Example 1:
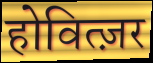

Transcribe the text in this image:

होवित्ज़र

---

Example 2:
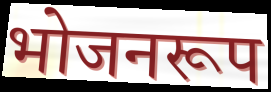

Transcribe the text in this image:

भोजनरूप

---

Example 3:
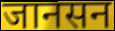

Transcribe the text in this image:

जानसन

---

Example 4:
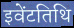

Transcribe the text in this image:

इवेंटतिथि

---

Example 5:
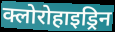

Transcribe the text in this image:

क्लोरोहाइड्रिन